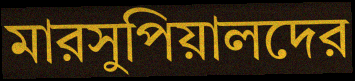
মারসুপিয়ালদের